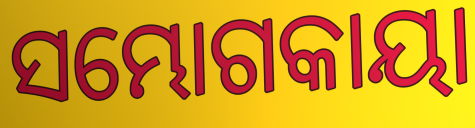
ସମ୍ଭୋଗକାୟା